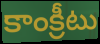
కాంక్రీటు